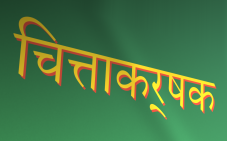
चित्ताकर्षक